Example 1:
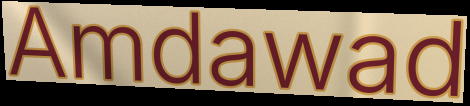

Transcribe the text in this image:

Amdawad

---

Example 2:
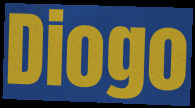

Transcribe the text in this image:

Diogo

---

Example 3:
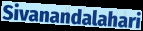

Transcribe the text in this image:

Sivanandalahari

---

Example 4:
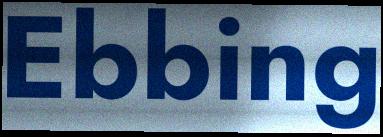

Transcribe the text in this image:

Ebbing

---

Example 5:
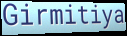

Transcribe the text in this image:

Girmitiya